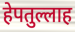
हेपतुल्लाह